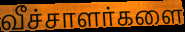
வீச்சாளர்களை